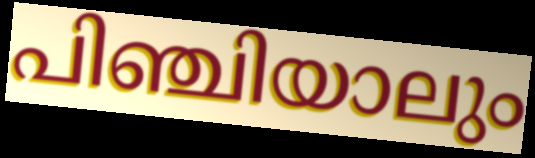
പിഞ്ചിയാലും